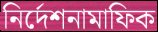
নির্দেশনামাফিক